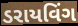
ડરાયવિંગ